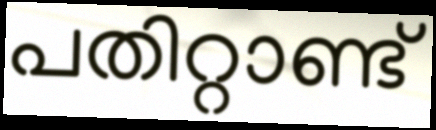
പതിറ്റാണ്ട്